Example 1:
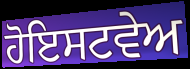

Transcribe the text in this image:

ਹੋਇਸਟਵੇਅ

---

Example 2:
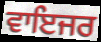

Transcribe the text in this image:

ਵਾਇਜਰ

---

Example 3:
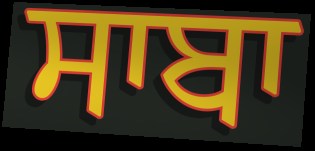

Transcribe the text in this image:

ਸਾਬਾ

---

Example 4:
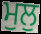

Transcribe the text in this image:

ਮੁਲੁ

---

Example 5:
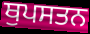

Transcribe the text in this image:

ਥੁਪਸਤਨ